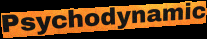
Psychodynamic